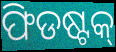
ଫିଡଷ୍ଟକ୍